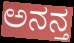
ಅನನ್ತ